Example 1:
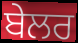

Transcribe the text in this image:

ਬੇਲਰ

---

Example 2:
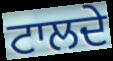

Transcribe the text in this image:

ਟਾਲਦੇ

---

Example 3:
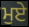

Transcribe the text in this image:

ਮੁਏ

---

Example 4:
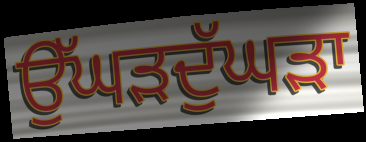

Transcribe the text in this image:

ਉੱਘੜਦੁੱਘੜਾ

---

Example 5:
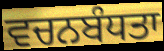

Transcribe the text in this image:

ਵਚਨਬੰਧਤਾ